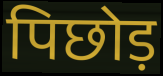
पिछोड़